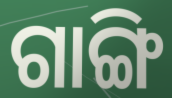
ଗାଙ୍ଗି